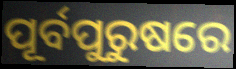
ପୂର୍ବପୁରୁଷରେ